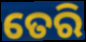
ତେରି